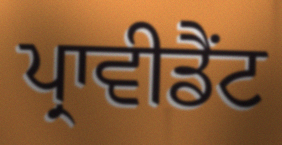
ਪ੍ਰਾਵੀਡੈਂਟ